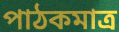
পাঠকমাত্র